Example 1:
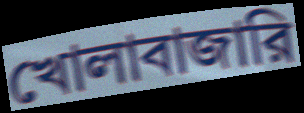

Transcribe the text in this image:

খোলাবাজারি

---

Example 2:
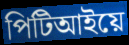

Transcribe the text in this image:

পিটিআইয়ে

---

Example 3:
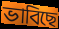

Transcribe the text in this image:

ভাবিছে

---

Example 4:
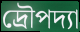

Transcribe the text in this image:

দ্রৌপদ্যা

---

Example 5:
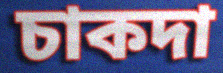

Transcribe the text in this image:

চাকদা